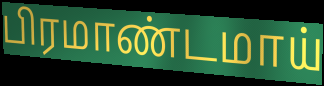
பிரமாண்டமாய்